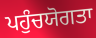
ਪਹੁੰਚਯੋਗਤਾ